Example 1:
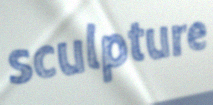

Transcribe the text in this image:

sculpture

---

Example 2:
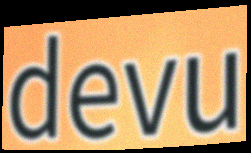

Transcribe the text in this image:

devu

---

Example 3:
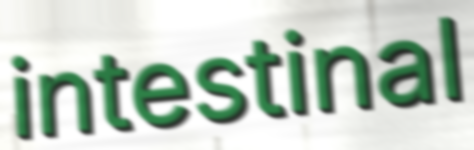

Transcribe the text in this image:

intestinal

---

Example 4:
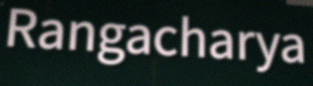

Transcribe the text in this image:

Rangacharya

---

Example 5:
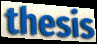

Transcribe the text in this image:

thesis